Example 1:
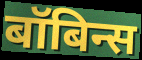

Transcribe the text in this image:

बॉबिन्स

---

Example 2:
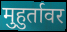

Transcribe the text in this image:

मुहुर्तावर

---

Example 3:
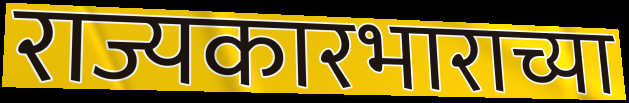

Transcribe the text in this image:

राज्यकारभाराच्या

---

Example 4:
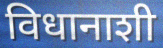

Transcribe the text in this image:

विधानाशी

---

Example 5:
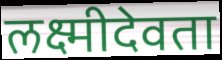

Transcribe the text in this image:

लक्ष्मीदेवता